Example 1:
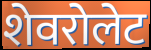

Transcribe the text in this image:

शेवरोलेट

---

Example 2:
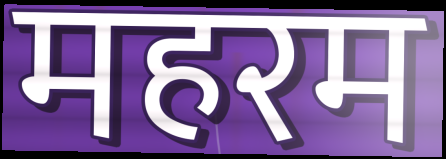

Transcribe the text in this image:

महरम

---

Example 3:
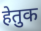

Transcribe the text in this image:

हेतुक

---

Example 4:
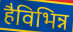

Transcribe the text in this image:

हैविभिन्न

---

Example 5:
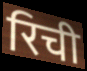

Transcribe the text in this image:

रिची